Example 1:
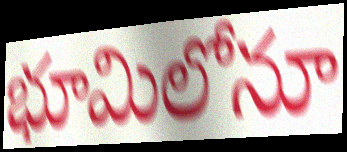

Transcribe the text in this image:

భూమిలోనూ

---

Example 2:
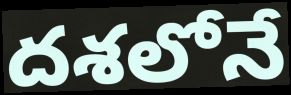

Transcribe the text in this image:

దశలోనే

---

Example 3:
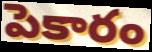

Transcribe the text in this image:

పెకారం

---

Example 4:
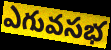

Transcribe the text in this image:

ఎగువసభ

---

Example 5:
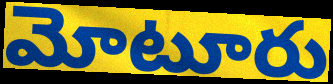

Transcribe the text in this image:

మోటూరు